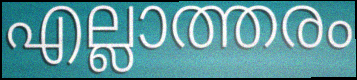
എല്ലാത്തരം